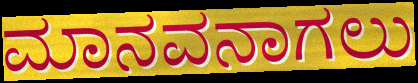
ಮಾನವನಾಗಲು